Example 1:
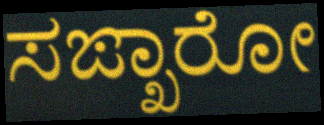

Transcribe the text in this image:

ಸಙ್ಖಾರೋ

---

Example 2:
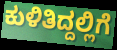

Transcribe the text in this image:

ಕುಳಿತಿದ್ದಲ್ಲಿಗೆ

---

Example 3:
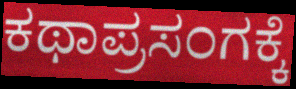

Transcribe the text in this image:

ಕಥಾಪ್ರಸಂಗಕ್ಕೆ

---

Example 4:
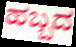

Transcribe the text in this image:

ಹಬ್ಬದ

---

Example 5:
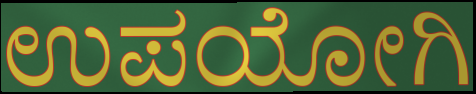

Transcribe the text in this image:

ಉಪಯೋಗಿ